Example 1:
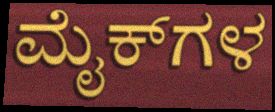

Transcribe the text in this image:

ಮೈಕ್‌ಗಳ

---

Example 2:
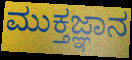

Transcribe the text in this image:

ಮುಕ್ತಜ್ಞಾನ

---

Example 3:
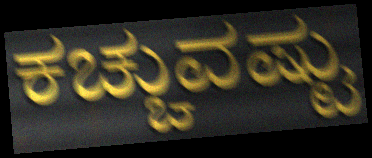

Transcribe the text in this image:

ಕಚ್ಚುವಷ್ಟು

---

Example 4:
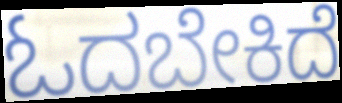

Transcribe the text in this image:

ಓದಬೇಕಿದೆ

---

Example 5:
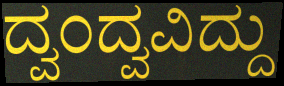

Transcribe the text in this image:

ದ್ವಂದ್ವವಿದ್ದು